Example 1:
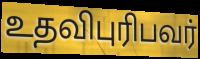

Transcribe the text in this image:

உதவிபுரிபவர்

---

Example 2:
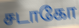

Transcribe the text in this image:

சடாகோ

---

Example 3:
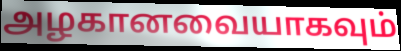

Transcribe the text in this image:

அழகானவையாகவும்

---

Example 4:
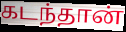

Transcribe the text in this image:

கடந்தான்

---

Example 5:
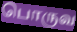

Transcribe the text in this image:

பொருவ